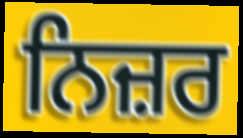
ਨਿਜ਼ਰ